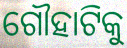
ଗୌହାଟିକୁ